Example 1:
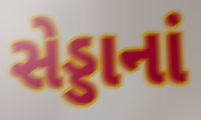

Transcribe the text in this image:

સેડ્ડાનાં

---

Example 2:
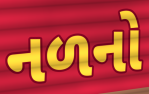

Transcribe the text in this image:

નળનો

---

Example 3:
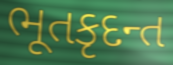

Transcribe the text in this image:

ભૂતકૃદન્ત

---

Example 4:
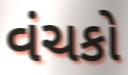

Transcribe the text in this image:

વંચકો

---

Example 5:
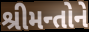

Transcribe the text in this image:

શ્રીમન્તોને